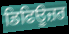
ਡਿਫਿਊਜ਼ਰ